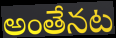
అంతేనట